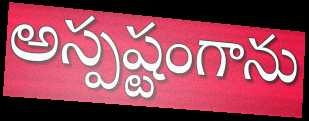
అస్పష్టంగాను